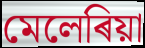
মেলেৰিয়া